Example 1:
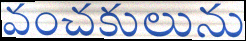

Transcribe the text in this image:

వంచకులును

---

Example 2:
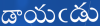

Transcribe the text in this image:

డాయఁడు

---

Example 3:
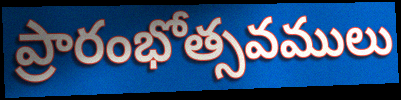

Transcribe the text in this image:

ప్రారంభోత్సవములు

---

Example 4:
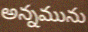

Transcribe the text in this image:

అన్నమును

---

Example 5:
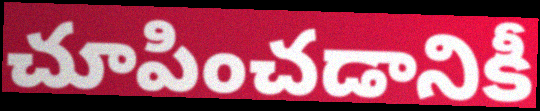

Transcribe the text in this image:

చూపించడానికీ